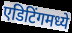
एडिटिंगमध्ये